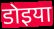
डोइया